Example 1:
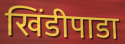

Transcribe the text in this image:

खिंडीपाडा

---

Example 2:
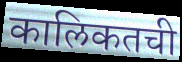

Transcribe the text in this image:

कालिकतची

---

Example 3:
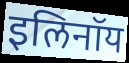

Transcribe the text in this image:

इलिनॉय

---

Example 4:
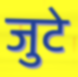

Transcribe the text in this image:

जुटे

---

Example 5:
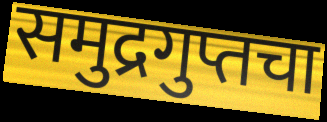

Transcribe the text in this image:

समुद्रगुप्तचा